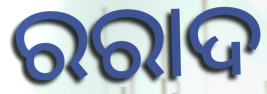
ରରାଦ